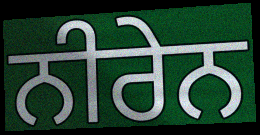
ਨੀਰੇਨ